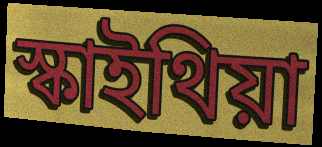
স্কাইথিয়া